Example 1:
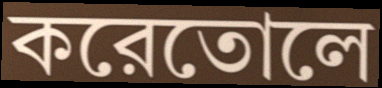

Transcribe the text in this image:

করেতোলে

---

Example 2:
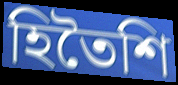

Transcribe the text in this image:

হিতৈশি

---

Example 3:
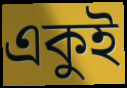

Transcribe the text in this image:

একুই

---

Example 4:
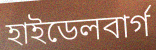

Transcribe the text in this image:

হাইডেলবার্গ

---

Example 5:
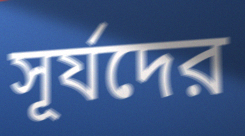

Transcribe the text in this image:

সূর্যদের